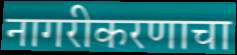
नागरीकरणाचा